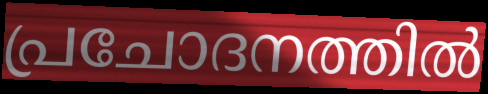
പ്രചോദനത്തിൽ